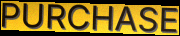
PURCHASE